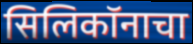
सिलिकॉनाचा